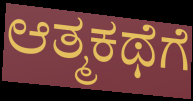
ಆತ್ಮಕಥೆಗೆ